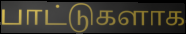
பாட்டுகளாக